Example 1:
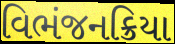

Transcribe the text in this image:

વિભંજનક્રિયા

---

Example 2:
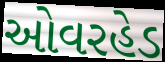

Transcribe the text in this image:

ઓવરહેડ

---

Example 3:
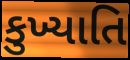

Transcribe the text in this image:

કુખ્યાતિ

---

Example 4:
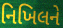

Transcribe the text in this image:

નિખિલને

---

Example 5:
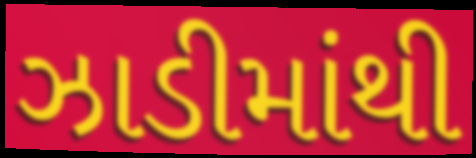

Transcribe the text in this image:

ઝાડીમાંથી